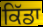
ਕਿੱਡਾ